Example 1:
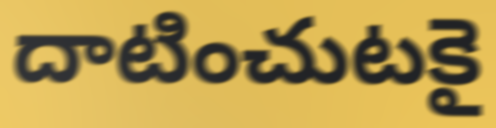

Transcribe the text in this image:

దాటించుటకై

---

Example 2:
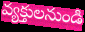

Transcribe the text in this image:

వ్యక్తులనుండి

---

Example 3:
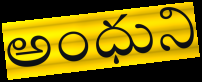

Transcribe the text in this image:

అంధుని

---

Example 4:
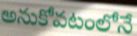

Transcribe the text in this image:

అనుకోవటంలోనే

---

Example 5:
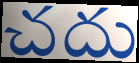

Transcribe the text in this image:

చదు